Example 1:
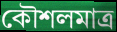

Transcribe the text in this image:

কৌশলমাত্র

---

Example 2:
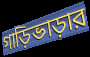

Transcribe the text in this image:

গাড়িভাড়ার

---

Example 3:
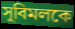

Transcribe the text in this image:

সুবিমলকে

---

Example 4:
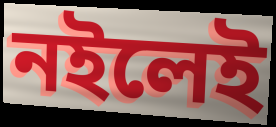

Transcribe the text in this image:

নইলেই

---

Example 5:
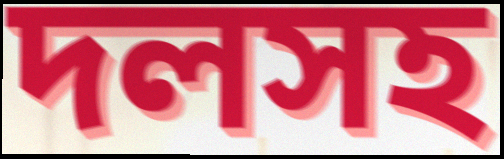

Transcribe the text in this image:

দলসহ